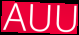
AUU